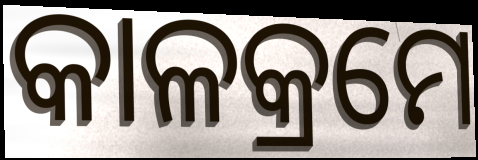
କାଳକ୍ରମେ